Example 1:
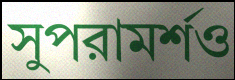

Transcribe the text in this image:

সুপরামর্শও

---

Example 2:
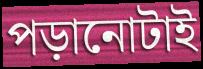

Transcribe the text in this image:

পড়ানোটাই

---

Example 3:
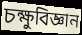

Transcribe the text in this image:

চক্ষুবিজ্ঞান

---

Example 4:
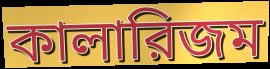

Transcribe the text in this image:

কালারিজম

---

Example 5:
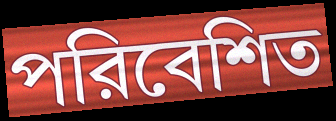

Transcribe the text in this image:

পরিবেশিত